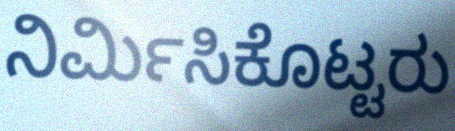
ನಿರ್ಮಿಸಿಕೊಟ್ಟರು